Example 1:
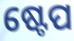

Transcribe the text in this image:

ଷ୍ଟେପ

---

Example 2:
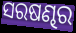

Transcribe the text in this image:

ସରଷଣ୍ଢର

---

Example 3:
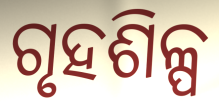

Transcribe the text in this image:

ଗୃହଶିଳ୍ପ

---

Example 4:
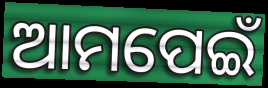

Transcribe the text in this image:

ଆମପେଇଁ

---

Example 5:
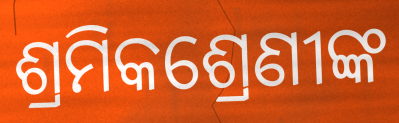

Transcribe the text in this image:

ଶ୍ରମିକଶ୍ରେଣୀଙ୍କ